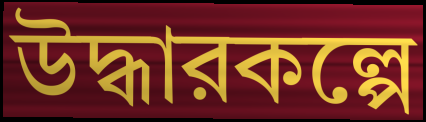
উদ্ধারকল্পে